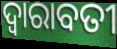
ଦ୍ଵାରାବତୀ